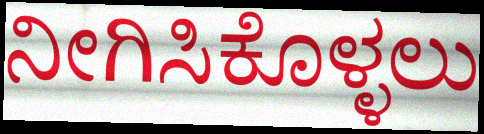
ನೀಗಿಸಿಕೊಳ್ಳಲು